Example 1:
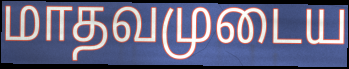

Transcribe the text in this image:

மாதவமுடைய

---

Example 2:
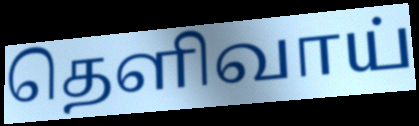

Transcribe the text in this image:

தெளிவாய்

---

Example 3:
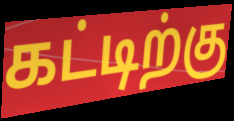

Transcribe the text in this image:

கட்டிற்கு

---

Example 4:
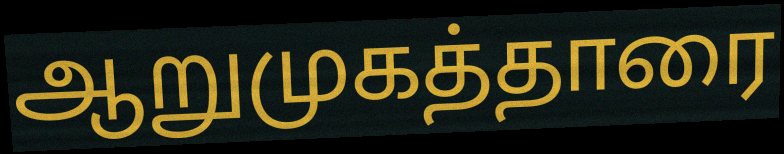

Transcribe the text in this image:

ஆறுமுகத்தாரை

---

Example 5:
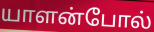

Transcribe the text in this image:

யாளன்போல்